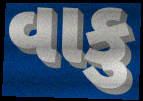
વાકુ